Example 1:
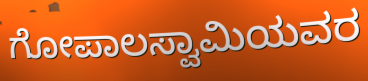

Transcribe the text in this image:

ಗೋಪಾಲಸ್ವಾಮಿಯವರ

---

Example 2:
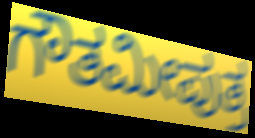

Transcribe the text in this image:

ಗೌತಮೀಪುತ್ರ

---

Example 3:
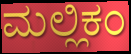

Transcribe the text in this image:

ಮಲ್ಲಿಕಂ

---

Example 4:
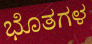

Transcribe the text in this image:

ಭೊತಗಳ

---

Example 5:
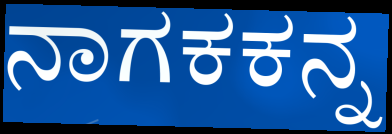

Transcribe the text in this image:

ನಾಗಕಕನ್ನ